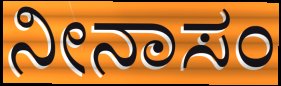
ನೀನಾಸಂ